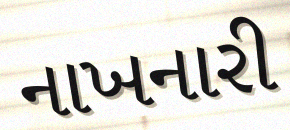
નાખનારી